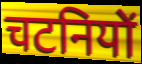
चटनियों